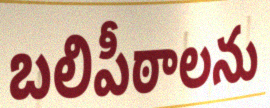
బలిపీఠాలను